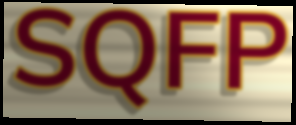
SQFP